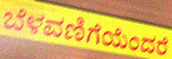
ಬೆಳವಣಿಗೆಯೆಂದರೆ